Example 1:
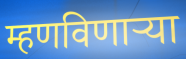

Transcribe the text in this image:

म्हणविणाऱ्या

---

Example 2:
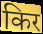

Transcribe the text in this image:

किर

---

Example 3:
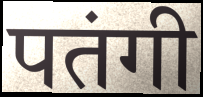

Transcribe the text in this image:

पतंगी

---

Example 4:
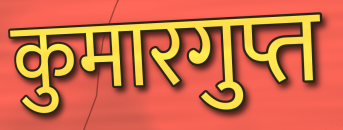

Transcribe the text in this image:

कुमारगुप्त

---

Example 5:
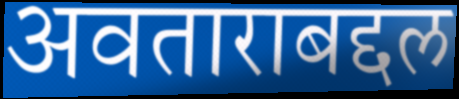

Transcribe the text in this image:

अवताराबद्दल